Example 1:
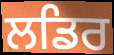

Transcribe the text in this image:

ਲਡਿਰ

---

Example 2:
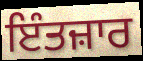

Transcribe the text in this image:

ਇੰਤਜ਼ਾਰ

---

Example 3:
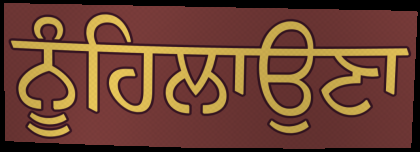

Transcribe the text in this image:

ਨੂੰਹਿਲਾਉਣਾ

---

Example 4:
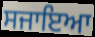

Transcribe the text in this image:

ਸਜਾਇਆ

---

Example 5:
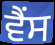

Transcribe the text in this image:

ਵੈਂਸ